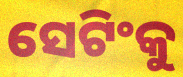
ସେଟିଂକୁ